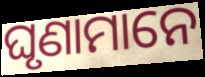
ଘୃଣାମାନେ